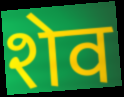
शेव